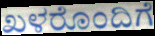
ಖಳರೊಂದಿಗೆ